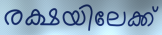
രക്ഷയിലേക്ക്